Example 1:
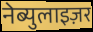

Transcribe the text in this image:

नेब्युलाइज़र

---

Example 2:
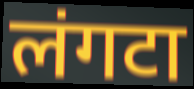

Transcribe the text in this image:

लंगटा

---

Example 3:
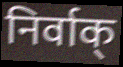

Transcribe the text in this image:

निर्वाक्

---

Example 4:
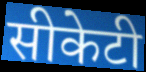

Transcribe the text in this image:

सीकेटी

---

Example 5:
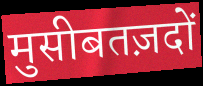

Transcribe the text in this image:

मुसीबतज़दों